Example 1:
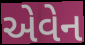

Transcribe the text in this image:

એવેન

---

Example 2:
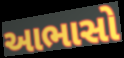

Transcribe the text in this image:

આભાસો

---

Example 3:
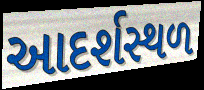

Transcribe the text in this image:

આદર્શસ્થળ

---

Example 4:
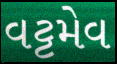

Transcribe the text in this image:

વટ્ટમેવ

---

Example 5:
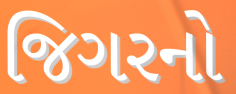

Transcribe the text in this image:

જિગરનો